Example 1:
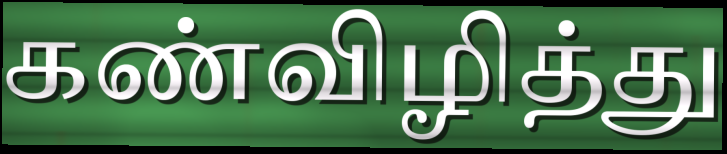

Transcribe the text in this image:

கண்விழித்து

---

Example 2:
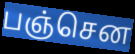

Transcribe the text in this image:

பஞ்சென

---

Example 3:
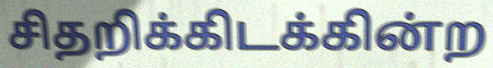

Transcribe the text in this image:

சிதறிக்கிடக்கின்ற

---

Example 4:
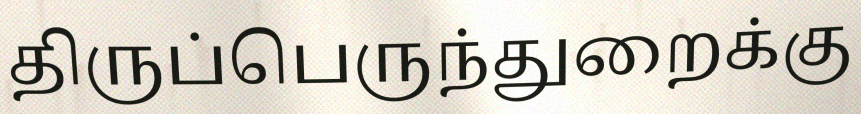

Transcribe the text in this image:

திருப்பெருந்துறைக்கு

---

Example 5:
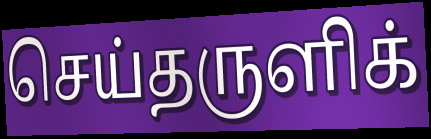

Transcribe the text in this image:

செய்தருளிக்